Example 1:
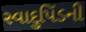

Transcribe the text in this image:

સ્વાદુપિંડની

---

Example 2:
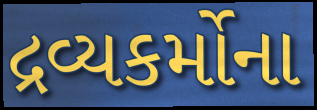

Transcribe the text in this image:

દ્રવ્યકર્મોના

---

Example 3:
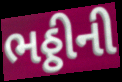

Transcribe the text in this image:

ભઠ્ઠીની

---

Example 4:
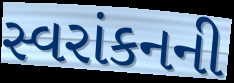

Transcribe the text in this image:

સ્વરાંકનની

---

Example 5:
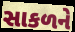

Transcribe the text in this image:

સાકળને